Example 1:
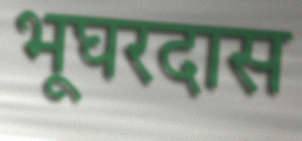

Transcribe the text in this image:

भूघरदास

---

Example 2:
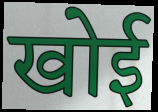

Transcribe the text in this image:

खोई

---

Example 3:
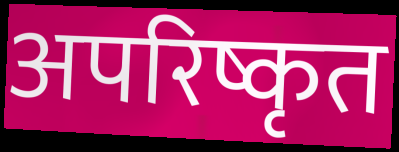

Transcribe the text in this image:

अपरिष्कृत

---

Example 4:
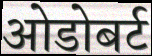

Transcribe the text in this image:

ओडोबर्ट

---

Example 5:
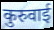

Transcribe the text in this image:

कुरुवाई